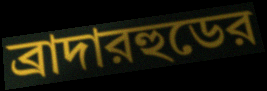
ব্রাদারহুডের